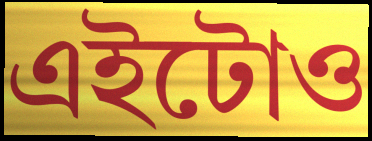
এইটোও